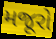
મજૂરો